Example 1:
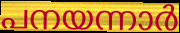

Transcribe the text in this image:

പനയന്നാർ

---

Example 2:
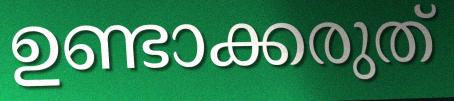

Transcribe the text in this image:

ഉണ്ടാക്കരുത്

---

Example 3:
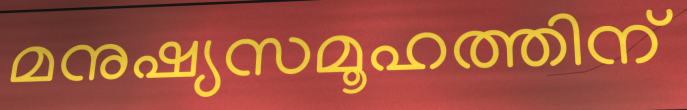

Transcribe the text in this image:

മനുഷ്യസമൂഹത്തിന്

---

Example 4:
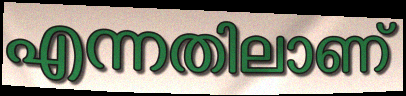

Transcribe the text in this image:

എന്നതിലാണ്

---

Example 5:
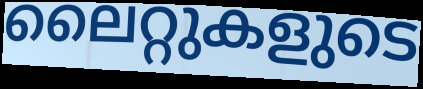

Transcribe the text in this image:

ലൈറ്റുകളുടെ